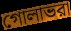
গোলাভরা